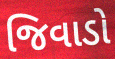
જિવાડો